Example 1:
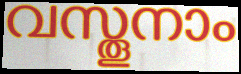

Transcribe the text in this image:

വസ്തൂനാം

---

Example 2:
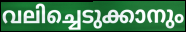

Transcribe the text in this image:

വലിച്ചെടുക്കാനും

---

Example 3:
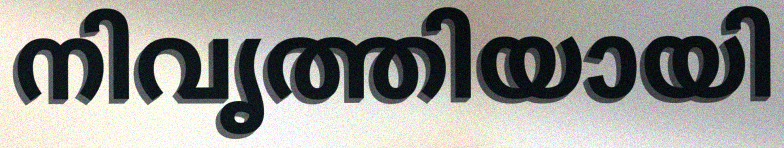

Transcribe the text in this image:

നിവൃത്തിയായി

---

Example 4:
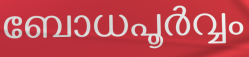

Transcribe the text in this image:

ബോധപൂർവ്വം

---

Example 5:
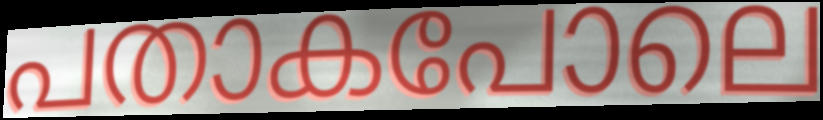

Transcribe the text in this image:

പതാകപോലെ